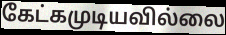
கேட்கமுடியவில்லை